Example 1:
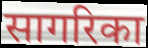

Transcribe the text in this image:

सागरिका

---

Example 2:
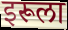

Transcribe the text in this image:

इरूला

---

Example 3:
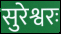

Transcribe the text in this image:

सुरेश्वरः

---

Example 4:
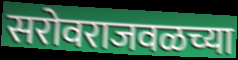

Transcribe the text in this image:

सरोवराजवळच्या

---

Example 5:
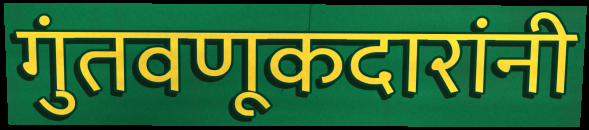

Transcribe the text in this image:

गुंतवणूकदारांनी